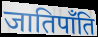
जातिपाँति